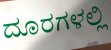
ದೂರಗಳಲ್ಲಿ